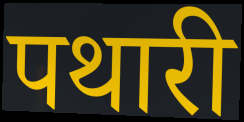
पथारी